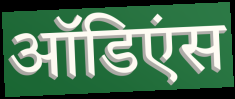
ऑडिएंस